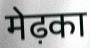
मेढ़का